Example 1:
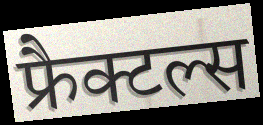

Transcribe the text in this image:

फ्रैक्टल्स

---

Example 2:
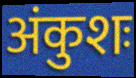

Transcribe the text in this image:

अंकुशः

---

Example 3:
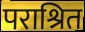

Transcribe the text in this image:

पराश्रित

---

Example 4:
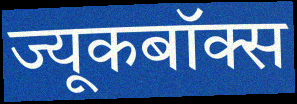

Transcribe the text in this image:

ज्यूकबॉक्स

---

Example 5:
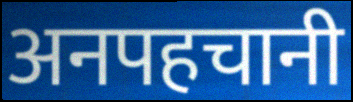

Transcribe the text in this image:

अनपहचानी